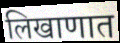
लिखाणात